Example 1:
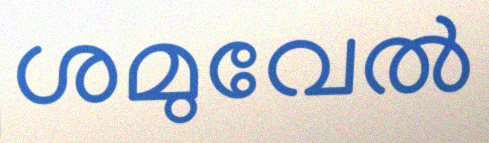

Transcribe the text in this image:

ശമുവേൽ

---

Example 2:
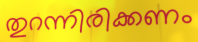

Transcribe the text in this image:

തുറന്നിരിക്കണം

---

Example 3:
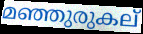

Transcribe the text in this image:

മഞ്ഞുരുകല്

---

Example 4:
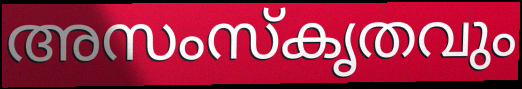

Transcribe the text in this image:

അസംസ്കൃതവും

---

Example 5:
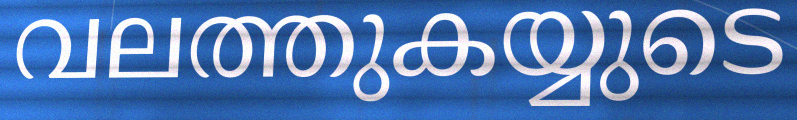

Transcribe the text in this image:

വലത്തുകയ്യുടെ